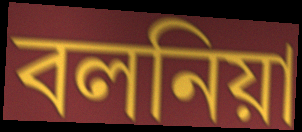
বলনিয়া